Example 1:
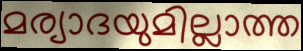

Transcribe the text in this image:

മര്യാദയുമില്ലാത്ത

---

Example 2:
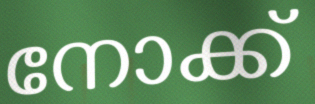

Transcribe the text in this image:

നോക്ക്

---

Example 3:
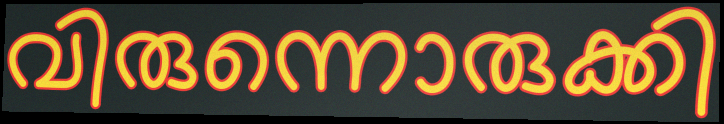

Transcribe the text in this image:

വിരുന്നൊരുക്കി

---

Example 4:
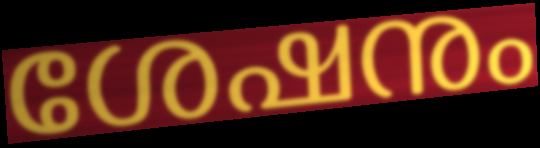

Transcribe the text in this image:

ശേഷനും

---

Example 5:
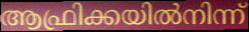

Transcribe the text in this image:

ആഫ്രിക്കയിൽനിന്ന്